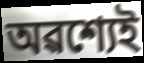
অৱশ্যেই